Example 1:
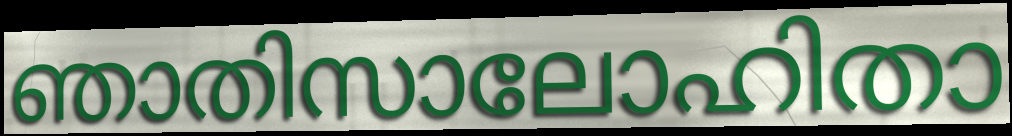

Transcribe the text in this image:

ഞാതിസാലോഹിതാ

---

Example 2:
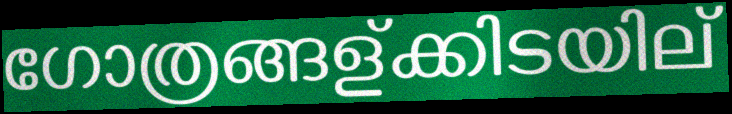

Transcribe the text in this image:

ഗോത്രങ്ങള്ക്കിടയില്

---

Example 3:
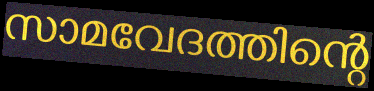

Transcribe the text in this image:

സാമവേദത്തിന്റെ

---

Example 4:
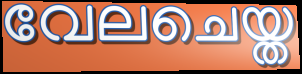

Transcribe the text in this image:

വേലചെയ്ത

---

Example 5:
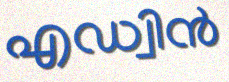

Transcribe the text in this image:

എഡ്വിൻ